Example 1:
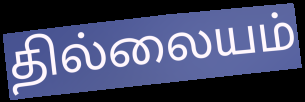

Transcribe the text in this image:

தில்லையம்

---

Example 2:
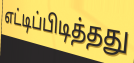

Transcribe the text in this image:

எட்டிப்பிடித்தது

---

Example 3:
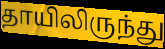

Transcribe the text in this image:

தாயிலிருந்து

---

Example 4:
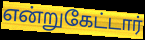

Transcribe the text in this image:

என்றுகேட்டார்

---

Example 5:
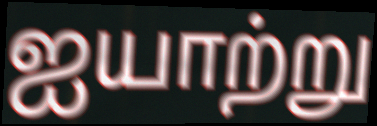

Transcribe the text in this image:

ஐயாற்று